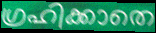
ഗ്രഹിക്കാതെ